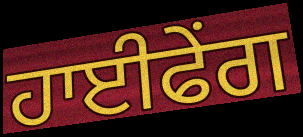
ਹਾਈਫੇਂਗ